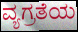
ವ್ಯಗ್ರತೆಯ